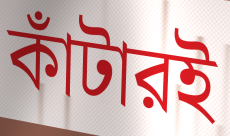
কাঁটারই